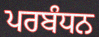
ਪਰਬੰਧਨ